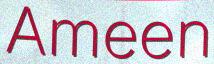
Ameen